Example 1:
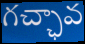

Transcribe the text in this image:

గచ్ఛావ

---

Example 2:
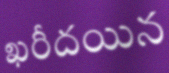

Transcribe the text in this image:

ఖరీదయిన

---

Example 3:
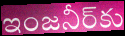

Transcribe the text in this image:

ఇంజనీర్‌కు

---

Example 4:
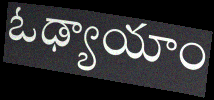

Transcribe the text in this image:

ఓఢ్యాయాం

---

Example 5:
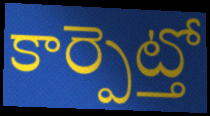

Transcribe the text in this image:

కార్పెట్తో